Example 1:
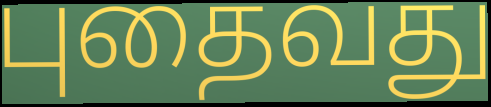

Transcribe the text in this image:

புதைவது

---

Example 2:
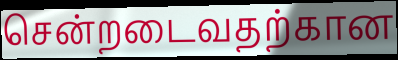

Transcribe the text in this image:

சென்றடைவதற்கான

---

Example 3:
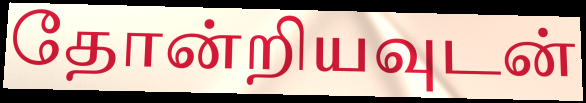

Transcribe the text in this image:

தோன்றியவுடன்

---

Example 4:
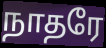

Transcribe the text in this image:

நாதரே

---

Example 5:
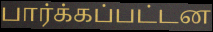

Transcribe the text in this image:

பார்க்கப்பட்டன